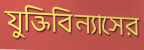
যুক্তিবিন্যাসের